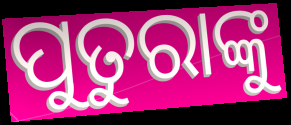
ପୁତୁରାଙ୍କୁ